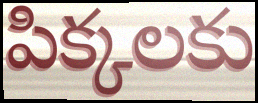
పిక్కలకు